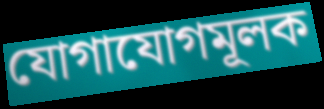
যোগাযোগমূলক